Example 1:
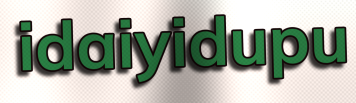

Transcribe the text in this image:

idaiyidupu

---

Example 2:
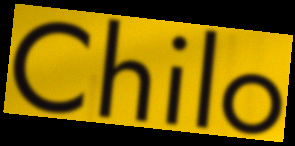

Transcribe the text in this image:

Chilo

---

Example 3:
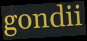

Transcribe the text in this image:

gondii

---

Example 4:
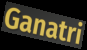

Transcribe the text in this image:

Ganatri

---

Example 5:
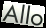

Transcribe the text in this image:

Allo